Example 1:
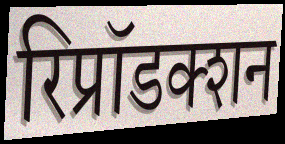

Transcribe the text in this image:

रिप्रॉडक्शन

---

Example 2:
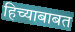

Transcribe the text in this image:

हिच्याबाबत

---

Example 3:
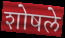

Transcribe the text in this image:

शोषले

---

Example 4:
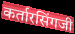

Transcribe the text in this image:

कर्तारसिंगजी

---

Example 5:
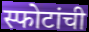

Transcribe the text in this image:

स्फोटांची